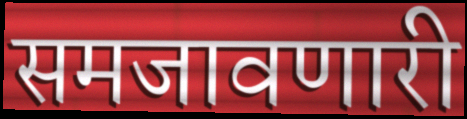
समजावणारी